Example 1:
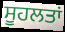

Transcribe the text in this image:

ਸੂਹਲਤਾਂ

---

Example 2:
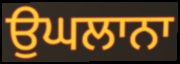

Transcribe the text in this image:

ਉਘਲਾਨਾ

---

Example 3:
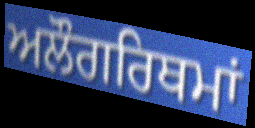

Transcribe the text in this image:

ਅਲੌਗਰਿਥਮਾਂ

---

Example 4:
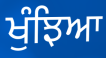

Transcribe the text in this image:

ਖੁੰਝਿਆ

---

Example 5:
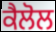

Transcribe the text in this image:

ਕੈਲੋਲ